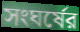
সংঘর্ষের